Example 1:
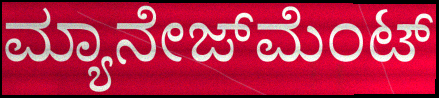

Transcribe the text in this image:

ಮ್ಯಾನೇಜ್‍ಮೆಂಟ್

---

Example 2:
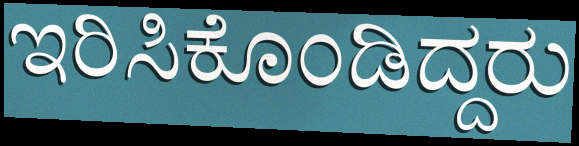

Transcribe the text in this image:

ಇರಿಸಿಕೊಂಡಿದ್ದರು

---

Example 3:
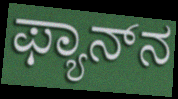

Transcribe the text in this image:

ಫ್ಯಾನ್‌ನ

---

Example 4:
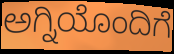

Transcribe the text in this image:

ಅಗ್ನಿಯೊಂದಿಗೆ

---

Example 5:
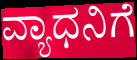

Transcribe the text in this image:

ವ್ಯಾಧನಿಗೆ